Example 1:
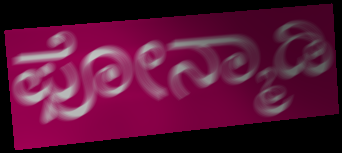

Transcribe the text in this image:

ಫೋನ್ಮಾಡಿ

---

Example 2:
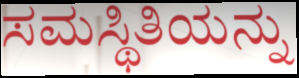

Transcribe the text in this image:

ಸಮಸ್ಥಿತಿಯನ್ನು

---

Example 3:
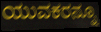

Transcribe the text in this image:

ಯುವಕರನ್ನೂ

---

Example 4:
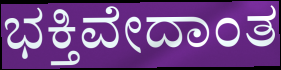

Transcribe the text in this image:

ಭಕ್ತಿವೇದಾಂತ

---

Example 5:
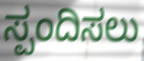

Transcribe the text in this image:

ಸ್ಪಂದಿಸಲು